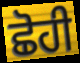
ਛੋਹੀ